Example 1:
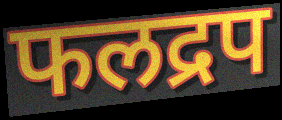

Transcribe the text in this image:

फलद्रप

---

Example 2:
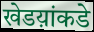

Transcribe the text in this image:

खेडय़ांकडे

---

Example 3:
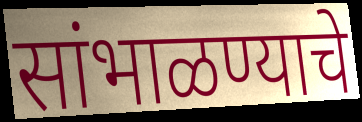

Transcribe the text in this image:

सांभाळण्याचे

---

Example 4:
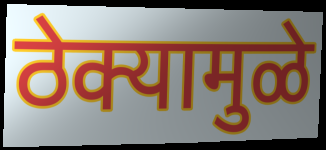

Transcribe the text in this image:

ठेक्यामुळे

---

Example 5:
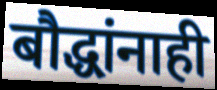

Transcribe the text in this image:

बौद्धांनाही